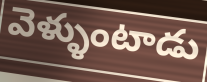
వెళ్ళుంటాడు